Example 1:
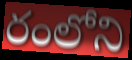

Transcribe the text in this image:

రంలోని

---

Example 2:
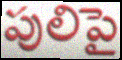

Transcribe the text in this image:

పులిపై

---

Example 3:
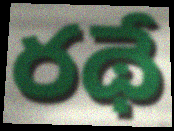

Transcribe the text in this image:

రథే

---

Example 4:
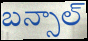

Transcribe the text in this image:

బన్సాల్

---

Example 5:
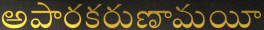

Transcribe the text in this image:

అపారకరుణామయీ